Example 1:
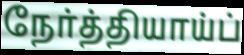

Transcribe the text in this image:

நேர்த்தியாய்ப்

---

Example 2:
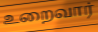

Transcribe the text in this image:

உறைவார்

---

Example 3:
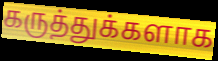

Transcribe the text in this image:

கருத்துக்களாக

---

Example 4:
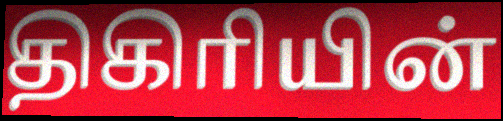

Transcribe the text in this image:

திகிரியின்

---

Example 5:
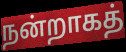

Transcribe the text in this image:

நன்றாகத்